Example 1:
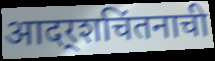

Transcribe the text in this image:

आदर्शचिंतनाची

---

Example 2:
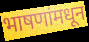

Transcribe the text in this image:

भाषणांमधून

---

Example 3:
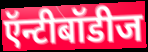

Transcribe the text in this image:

ऍन्टीबॉडीज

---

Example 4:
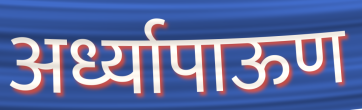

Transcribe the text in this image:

अर्ध्यापाऊण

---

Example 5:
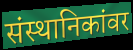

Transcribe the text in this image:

संस्थानिकांवर